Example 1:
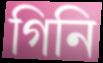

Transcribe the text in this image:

গিনি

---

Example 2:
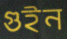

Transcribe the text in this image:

গুইন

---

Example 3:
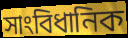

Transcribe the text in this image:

সাংবিধানিক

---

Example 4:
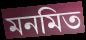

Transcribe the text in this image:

মনমিত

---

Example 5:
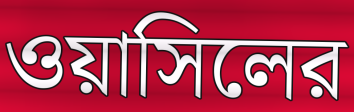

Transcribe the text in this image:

ওয়াসিলের